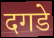
दगडे